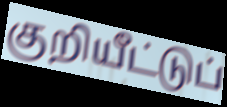
குறியீட்டுப்